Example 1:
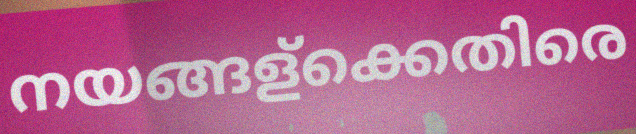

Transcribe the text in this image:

നയങ്ങള്ക്കെതിരെ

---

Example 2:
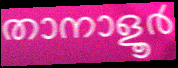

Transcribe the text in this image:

താനാളൂർ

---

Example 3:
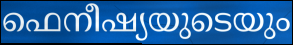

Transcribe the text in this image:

ഫെനീഷ്യയുടെയും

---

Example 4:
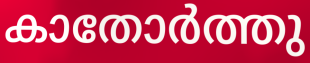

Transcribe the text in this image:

കാതോർത്തു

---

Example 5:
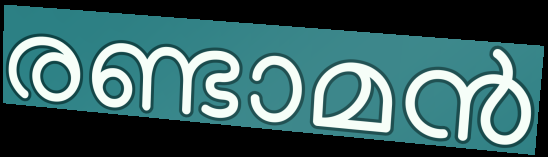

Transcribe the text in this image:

രണ്ടാമൻ